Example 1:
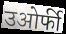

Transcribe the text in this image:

उओर्फी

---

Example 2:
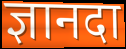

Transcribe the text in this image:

ज्ञानदा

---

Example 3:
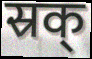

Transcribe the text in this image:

स्रक्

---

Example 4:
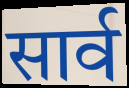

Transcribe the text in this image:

सार्व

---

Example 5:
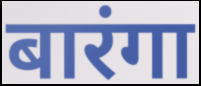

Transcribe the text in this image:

बारंगा